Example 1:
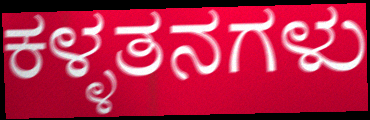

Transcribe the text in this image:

ಕಳ್ಳತನಗಳು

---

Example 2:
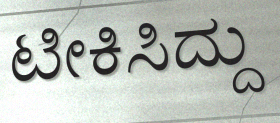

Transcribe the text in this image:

ಟೀಕಿಸಿದ್ದು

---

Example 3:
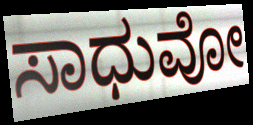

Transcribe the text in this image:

ಸಾಧುವೋ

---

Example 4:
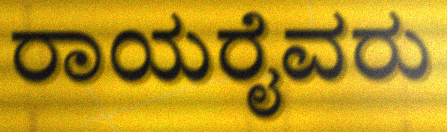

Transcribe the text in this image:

ರಾಯರೈವರು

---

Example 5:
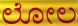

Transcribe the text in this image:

ಲೋಲ